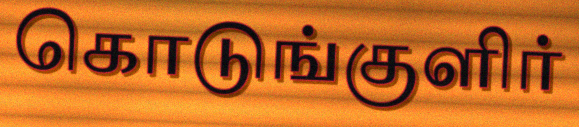
கொடுங்குளிர்